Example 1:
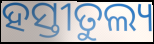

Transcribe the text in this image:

ହସ୍ତୀତୁଲ୍ୟ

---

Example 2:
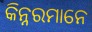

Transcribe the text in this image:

କିନ୍ନରମାନେ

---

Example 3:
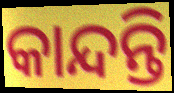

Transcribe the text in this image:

କାନ୍ଦନ୍ତି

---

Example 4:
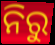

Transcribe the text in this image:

ନିରୁ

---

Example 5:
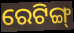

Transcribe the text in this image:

ରେଟିଙ୍ଗ୍